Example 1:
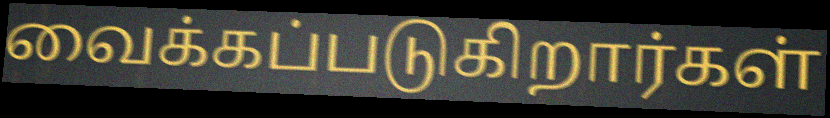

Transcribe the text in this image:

வைக்கப்படுகிறார்கள்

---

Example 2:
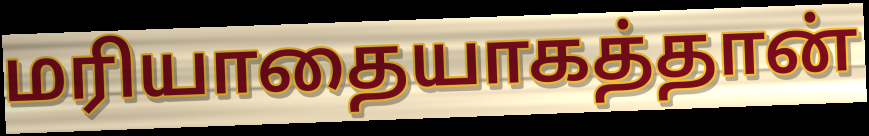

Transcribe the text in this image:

மரியாதையாகத்தான்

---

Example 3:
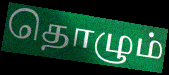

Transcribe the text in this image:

தொழும்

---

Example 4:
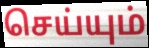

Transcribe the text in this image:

செய்யும்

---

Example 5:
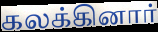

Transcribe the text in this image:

கலக்கினார்